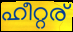
ഹീറ്റര്